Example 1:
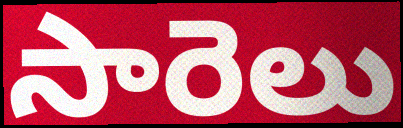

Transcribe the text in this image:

సారెలు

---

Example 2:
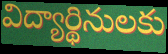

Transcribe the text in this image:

విద్యార్థినులకు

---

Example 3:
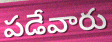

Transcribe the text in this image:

పడేవారు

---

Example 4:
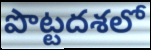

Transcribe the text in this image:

పొట్టదశలో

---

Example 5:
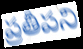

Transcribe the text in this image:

ప్రతీపని